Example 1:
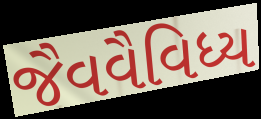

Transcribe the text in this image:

જૈવવૈવિધ્ય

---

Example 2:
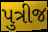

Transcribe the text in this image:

પુત્રીજ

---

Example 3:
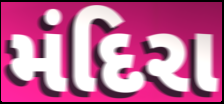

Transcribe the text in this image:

મંદિરા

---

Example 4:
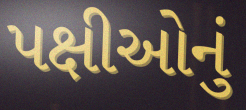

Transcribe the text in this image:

પક્ષીઓનું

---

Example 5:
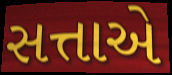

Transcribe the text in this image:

સત્તાએ